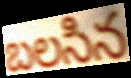
బలసిన